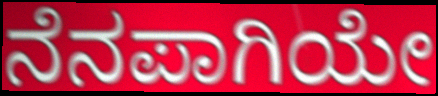
ನೆನಪಾಗಿಯೇ